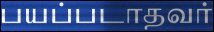
பயப்படாதவர்